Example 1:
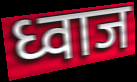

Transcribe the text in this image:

ध्वाज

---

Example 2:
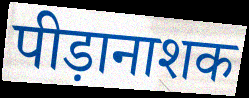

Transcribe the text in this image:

पीड़ानाशक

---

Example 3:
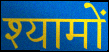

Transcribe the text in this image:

श्यामों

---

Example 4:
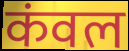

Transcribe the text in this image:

कंवल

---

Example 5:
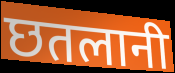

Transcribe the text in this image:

छतलानी